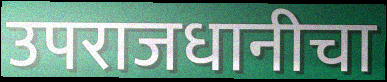
उपराजधानीचा